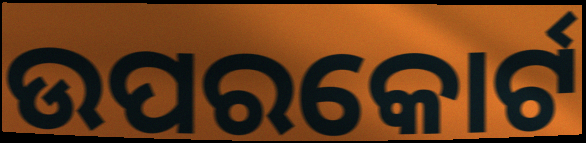
ଉପରକୋର୍ଟ